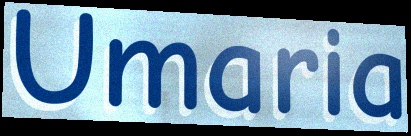
Umaria